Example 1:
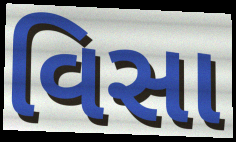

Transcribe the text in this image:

વિસા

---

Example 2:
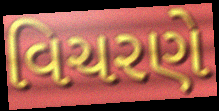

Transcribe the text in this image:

વિચરણે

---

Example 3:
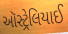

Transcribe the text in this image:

ઑસ્ટ્રેલિયાઈ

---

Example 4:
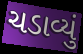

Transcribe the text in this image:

ચડાવ્યું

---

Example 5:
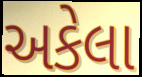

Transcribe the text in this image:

અકેલા